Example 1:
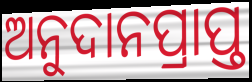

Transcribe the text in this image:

ଅନୁଦାନପ୍ରାପ୍ତ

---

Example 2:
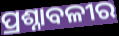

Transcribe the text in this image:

ପ୍ରଶ୍ନାବଳୀର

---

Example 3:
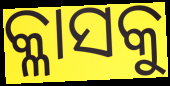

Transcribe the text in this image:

କ୍ଳାସକୁ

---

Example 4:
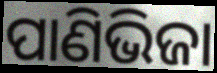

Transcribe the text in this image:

ପାଣିଭିଜା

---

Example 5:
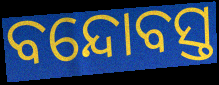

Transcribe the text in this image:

ବନ୍ଦୋବସ୍ତ